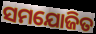
ସମଯୋଜିତ